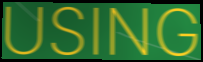
USING